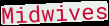
Midwives